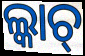
ଲ୍କାଚ୍